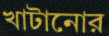
খাটানোর